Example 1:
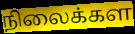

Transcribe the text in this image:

நிலைக்கள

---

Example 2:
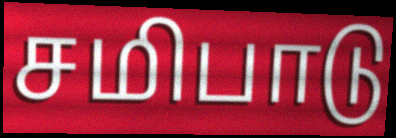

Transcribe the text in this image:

சமிபாடு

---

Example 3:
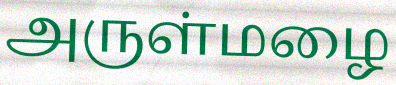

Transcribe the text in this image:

அருள்மழை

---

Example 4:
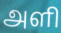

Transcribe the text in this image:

அளி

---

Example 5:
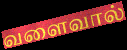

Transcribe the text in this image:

வளைவால்